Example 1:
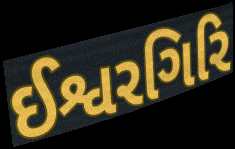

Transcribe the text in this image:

ઈશ્વરગિરિ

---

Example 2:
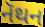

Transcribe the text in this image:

નૅથન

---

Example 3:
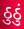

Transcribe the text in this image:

ઠુઠું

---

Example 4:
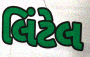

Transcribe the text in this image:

લિંટેલ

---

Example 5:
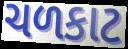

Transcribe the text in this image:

ચળકાટ